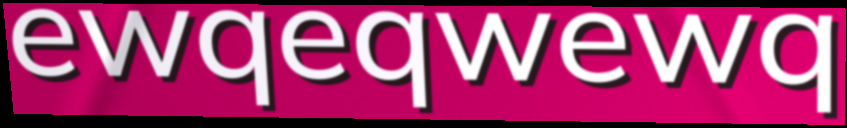
ewqeqwewq